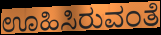
ಊಹಿಸಿರುವಂತೆ